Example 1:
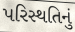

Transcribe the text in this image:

પરિસ્થતિનું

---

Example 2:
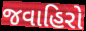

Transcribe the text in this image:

જવાહિરો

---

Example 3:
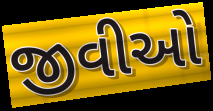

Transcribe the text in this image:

જીવીઓ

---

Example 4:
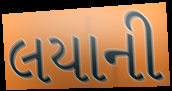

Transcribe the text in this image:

લયાની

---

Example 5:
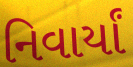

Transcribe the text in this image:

નિવાર્યાં